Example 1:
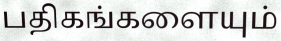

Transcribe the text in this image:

பதிகங்களையும்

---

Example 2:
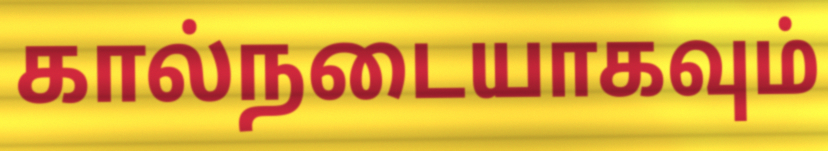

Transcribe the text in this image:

கால்நடையாகவும்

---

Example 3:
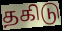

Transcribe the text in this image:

தகிடு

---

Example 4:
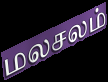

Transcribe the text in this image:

மலசலம்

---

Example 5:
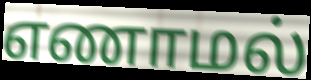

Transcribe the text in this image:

எணாமல்